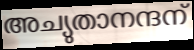
അച്യുതാനന്ദന്